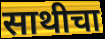
साथीचा